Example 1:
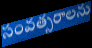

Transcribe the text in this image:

సంవత్సరాలను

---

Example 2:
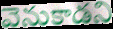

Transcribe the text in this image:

వెనుకాడని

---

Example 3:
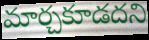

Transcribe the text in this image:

మార్చకూడదని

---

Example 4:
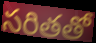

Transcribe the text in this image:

సరితతో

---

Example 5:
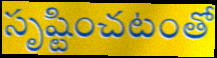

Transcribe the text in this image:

సృష్టించటంతో